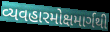
વ્યવહારમોક્ષમાર્ગથી